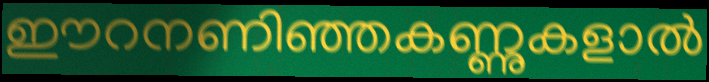
ഈറനണിഞ്ഞകണ്ണുകളാൽ